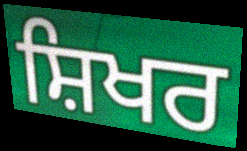
ਸ਼ਿਖਰ